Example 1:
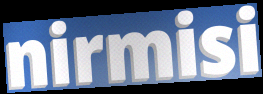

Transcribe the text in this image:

nirmisi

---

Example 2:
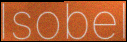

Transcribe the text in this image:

Isobel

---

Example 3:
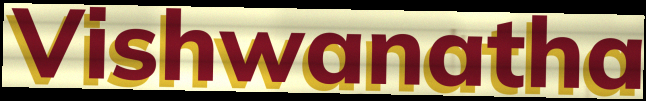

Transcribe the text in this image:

Vishwanatha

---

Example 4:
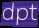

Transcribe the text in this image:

dpt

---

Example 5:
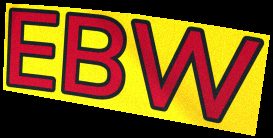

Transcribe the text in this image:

EBW